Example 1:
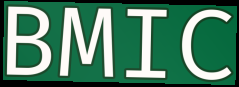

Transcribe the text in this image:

BMIC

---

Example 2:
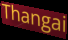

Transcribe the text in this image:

Thangai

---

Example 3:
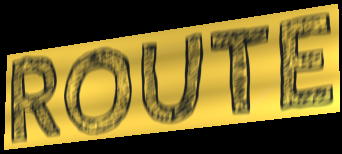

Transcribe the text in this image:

ROUTE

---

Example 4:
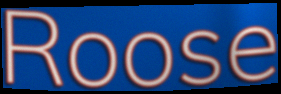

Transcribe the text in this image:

Roose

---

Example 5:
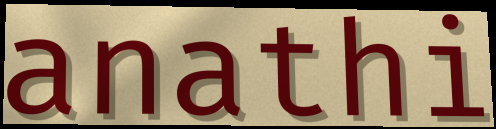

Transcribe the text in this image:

anathi